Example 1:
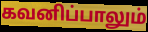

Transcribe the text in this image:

கவனிப்பாலும்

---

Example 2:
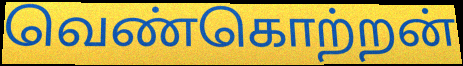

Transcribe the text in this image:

வெண்கொற்றன்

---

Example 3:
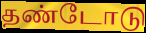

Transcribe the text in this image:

தண்டோடு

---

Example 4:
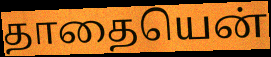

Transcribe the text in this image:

தாதையென்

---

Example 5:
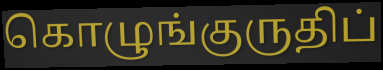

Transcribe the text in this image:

கொழுங்குருதிப்